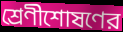
শ্রেণীশোষণের